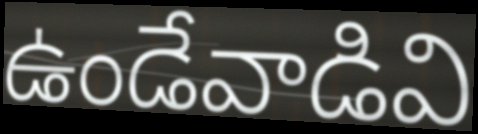
ఉండేవాడివి